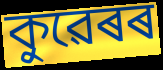
কুৱেৰৰ